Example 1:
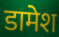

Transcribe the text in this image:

डामेश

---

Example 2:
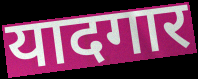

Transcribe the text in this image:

यादगार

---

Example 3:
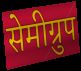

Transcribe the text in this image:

सेमीग्रुप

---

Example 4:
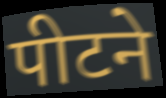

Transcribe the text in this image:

पीटने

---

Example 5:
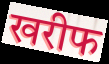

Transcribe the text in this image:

खरीफ